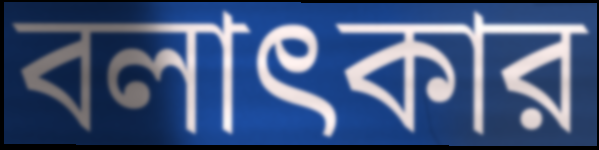
বলাৎকার